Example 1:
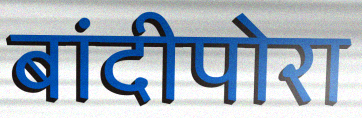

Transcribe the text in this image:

बांदीपोरा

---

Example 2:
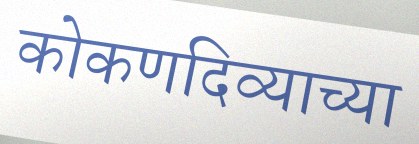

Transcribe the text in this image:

कोकणदिव्याच्या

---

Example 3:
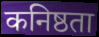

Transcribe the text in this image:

कनिष्ठता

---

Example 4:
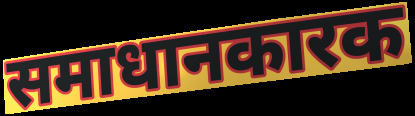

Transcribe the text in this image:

समाधानकारक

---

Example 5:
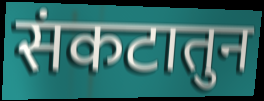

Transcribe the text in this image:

संकटातुन